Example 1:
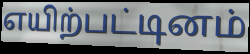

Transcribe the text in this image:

எயிற்பட்டினம்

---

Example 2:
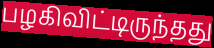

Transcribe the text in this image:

பழகிவிட்டிருந்தது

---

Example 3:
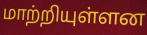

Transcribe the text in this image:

மாற்றியுள்ளன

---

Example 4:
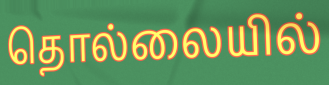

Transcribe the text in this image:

தொல்லையில்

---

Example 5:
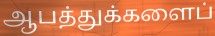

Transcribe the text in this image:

ஆபத்துக்களைப்